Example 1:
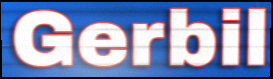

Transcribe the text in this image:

Gerbil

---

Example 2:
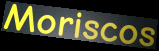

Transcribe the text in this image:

Moriscos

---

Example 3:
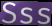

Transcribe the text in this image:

Sss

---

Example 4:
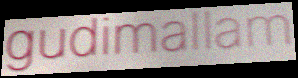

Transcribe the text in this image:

gudimallam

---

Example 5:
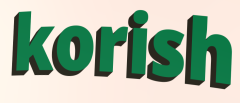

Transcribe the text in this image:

korish